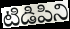
టిడిపిని